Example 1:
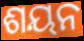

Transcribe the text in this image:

ଶୟନ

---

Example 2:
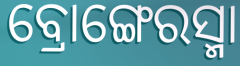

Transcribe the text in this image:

ବ୍ରୋଙ୍ଗେରସ୍ମା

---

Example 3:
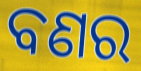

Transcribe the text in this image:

ବଣର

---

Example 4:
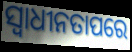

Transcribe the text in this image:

ସ୍ୱାଧୀନତାପରେ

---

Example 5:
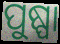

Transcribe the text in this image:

ପୁଷ୍ପା